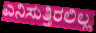
ಎನಿಸುತ್ತಿರಲಿಲ್ಲ